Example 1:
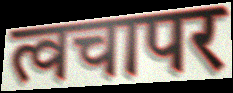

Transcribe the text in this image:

त्वचापर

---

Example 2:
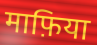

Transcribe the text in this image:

माफ़िया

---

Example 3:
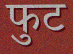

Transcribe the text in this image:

फुट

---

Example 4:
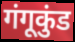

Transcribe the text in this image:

गंगूकुंड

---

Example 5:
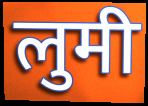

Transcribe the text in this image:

लुमी